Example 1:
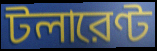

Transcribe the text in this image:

টলারেণ্ট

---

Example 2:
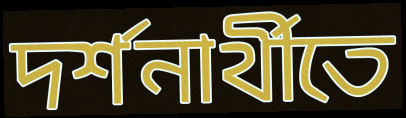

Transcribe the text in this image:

দর্শনার্থীতে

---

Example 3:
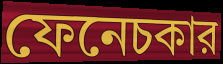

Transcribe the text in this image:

ফেনেচকার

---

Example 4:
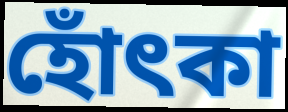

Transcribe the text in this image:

হোঁৎকা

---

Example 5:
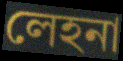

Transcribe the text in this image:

লেহনা